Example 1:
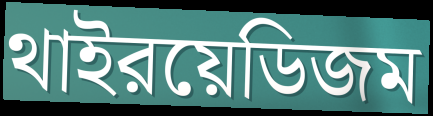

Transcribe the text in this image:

থাইরয়েডিজম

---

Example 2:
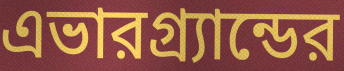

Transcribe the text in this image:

এভারগ্র্যান্ডের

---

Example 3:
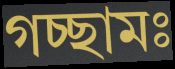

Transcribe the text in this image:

গচ্ছামঃ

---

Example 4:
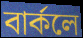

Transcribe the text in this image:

বার্কলে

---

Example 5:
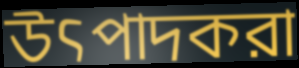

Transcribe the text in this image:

উৎপাদকরা